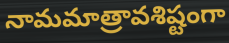
నామమాత్రావశిష్టంగా